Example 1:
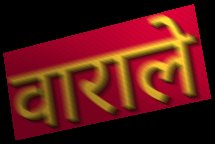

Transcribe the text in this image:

वाराले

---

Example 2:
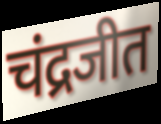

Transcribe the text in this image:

चंद्रजीत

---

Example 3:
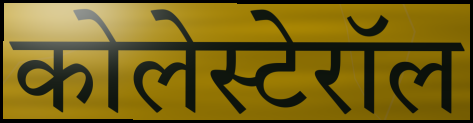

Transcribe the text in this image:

कोलेस्टेरॉल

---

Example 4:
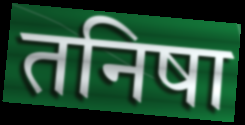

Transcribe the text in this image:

तनिषा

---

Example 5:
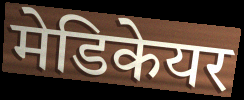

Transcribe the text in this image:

मेडिकेयर